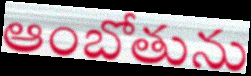
ఆంబోతును